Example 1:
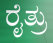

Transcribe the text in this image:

ರೈತ್ರು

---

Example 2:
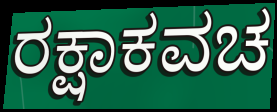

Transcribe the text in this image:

ರಕ್ಷಾಕವಚ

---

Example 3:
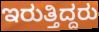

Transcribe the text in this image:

ಇರುತ್ತಿದ್ದರು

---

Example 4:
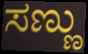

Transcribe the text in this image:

ಸಣ್ಣು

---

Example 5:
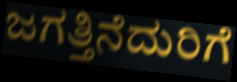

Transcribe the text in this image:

ಜಗತ್ತಿನೆದುರಿಗೆ